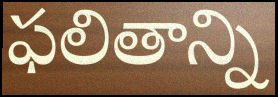
ఫలితాన్ని